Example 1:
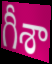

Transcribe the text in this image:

గీశా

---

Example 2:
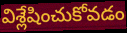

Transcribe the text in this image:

విశ్లేషించుకోవడం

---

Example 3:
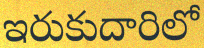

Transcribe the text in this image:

ఇరుకుదారిలో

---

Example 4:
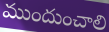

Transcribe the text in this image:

ముందుంచాలి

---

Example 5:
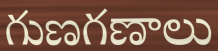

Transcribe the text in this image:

గుణగణాలు